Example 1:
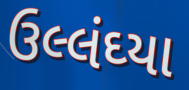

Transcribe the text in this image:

ઉલ્લંઘ્યા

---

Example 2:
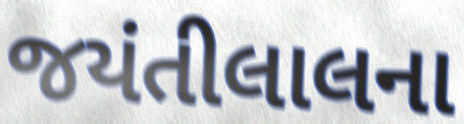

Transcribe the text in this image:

જયંતીલાલના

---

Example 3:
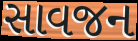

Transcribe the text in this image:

સાવજન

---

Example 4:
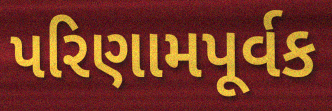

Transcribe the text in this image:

પરિણામપૂર્વક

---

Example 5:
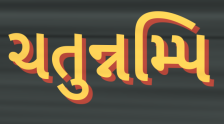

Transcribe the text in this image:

ચતુન્નમ્પિ